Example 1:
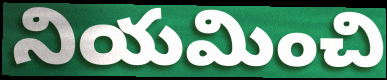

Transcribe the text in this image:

నియమించి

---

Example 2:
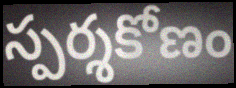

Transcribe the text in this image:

స్పర్శకోణం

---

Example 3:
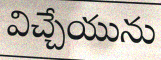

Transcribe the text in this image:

విచ్చేయును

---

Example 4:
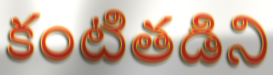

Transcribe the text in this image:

కంటితడిని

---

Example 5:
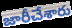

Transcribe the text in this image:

జారీచేశారు